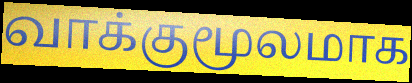
வாக்குமூலமாக